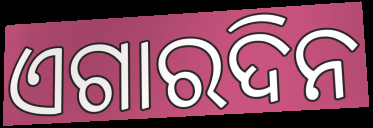
ଏଗାରଦିନ